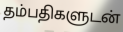
தம்பதிகளுடன்